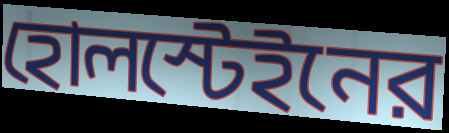
হোলস্টেইনের